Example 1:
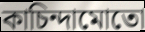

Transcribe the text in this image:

কাচিন্দামোতো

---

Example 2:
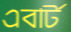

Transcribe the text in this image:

এবার্ট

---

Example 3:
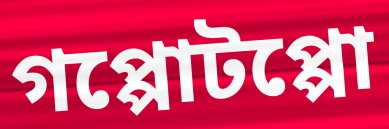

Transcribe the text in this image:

গপ্পোটপ্পো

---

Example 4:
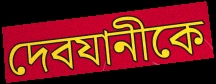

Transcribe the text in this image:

দেবযানীকে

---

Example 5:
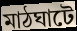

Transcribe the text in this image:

মাঠঘাটে